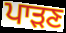
ਪਾੜਣ